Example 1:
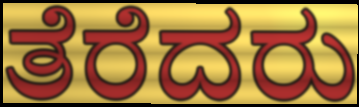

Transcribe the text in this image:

ತೆರೆದರು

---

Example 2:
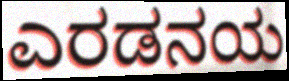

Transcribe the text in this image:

ಎರಡನಯ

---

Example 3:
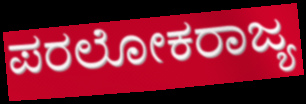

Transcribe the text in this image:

ಪರಲೋಕರಾಜ್ಯ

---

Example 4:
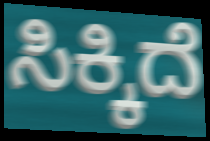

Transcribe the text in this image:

ಸಿಕ್ಕಿದೆ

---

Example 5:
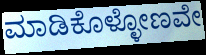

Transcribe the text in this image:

ಮಾಡಿಕೊಳ್ಳೋಣವೇ